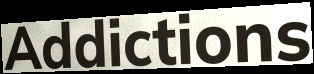
Addictions